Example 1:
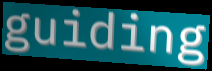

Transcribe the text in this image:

guiding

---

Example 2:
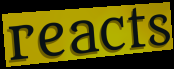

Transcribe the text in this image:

reacts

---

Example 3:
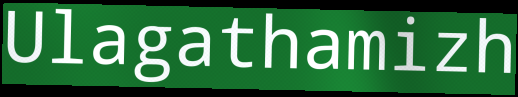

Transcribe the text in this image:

Ulagathamizh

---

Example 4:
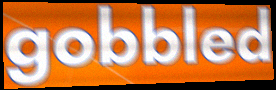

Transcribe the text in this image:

gobbled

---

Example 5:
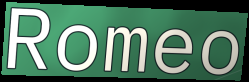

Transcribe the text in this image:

Romeo